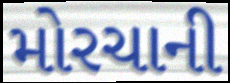
મોરચાની